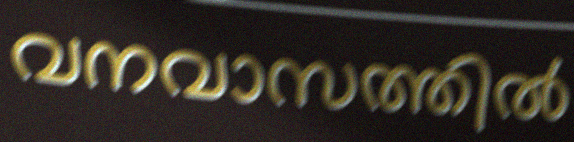
വനവാസത്തിൽ